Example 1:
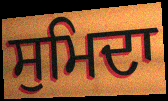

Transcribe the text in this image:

ਸੁਮਿਦਾ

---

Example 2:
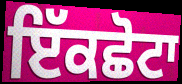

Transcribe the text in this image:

ਇੱਕਛੋਟਾ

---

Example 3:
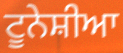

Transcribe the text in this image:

ਟੂਨੇਸ਼ੀਆ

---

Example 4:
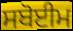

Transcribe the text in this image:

ਸਬੋਈਮ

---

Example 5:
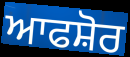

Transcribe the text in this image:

ਆਫਸ਼ੋਰ